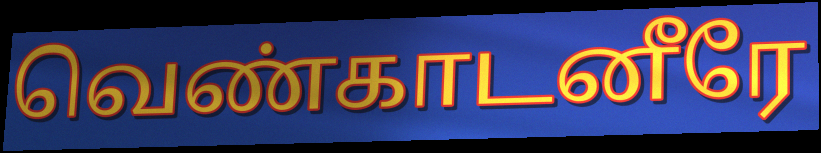
வெண்காடனீரே